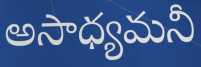
అసాధ్యమనీ